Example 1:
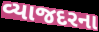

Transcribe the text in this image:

વ્યાજદરના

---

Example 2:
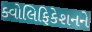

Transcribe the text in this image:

ક્વોલિફિકેશનને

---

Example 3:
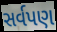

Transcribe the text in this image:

સર્વપણ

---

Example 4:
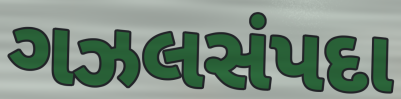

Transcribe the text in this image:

ગઝલસંપદા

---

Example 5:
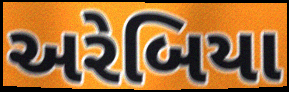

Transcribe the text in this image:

અરેબિયા